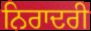
ਨਿਰਾਦਰੀ